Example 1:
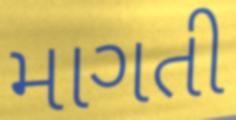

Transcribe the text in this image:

માગતી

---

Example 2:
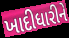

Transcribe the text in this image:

ખાદીધારીને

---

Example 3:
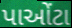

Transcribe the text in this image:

પાઓંટા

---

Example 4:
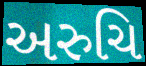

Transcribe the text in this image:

અરુચિ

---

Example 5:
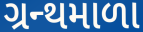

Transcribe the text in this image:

ગ્રન્થમાળા